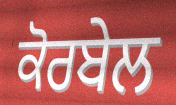
ਕੋਰਬੇਲ